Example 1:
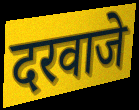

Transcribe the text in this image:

दरवाजे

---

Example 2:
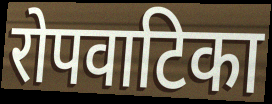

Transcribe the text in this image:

रोपवाटिका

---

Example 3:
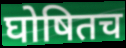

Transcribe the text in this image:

घोषितच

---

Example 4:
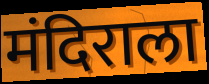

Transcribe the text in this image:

मंदिराला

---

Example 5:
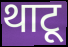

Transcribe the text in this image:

थाटू